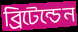
ব্রিটেন্ডেন